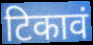
टिकावं